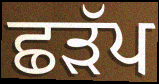
ਛੜੱਪ